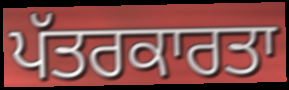
ਪੱਤਰਕਾਰਤਾ